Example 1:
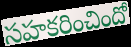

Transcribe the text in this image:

సహకరించిందో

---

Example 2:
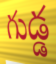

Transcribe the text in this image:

గుడ్డ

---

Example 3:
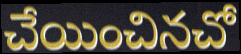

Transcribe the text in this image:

చేయించినచో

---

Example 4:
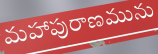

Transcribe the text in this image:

మహాపురాణమును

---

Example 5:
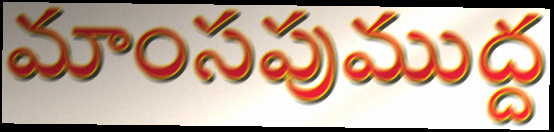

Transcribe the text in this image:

మాంసపుముద్ద